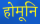
होमूनि